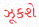
ઝૂકશે